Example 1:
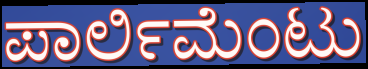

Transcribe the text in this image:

ಪಾರ್ಲಿಮೆಂಟು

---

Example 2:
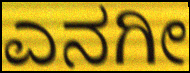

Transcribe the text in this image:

ಎನಗೀ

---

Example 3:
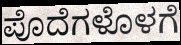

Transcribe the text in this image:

ಪೊದೆಗಳೊಳಗೆ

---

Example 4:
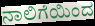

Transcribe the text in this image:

ನಾಲಿಗೆಯಿಂದ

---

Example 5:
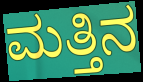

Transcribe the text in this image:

ಮತ್ತಿನ